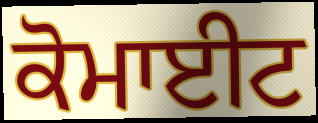
ਕੋਮਾਈਟ